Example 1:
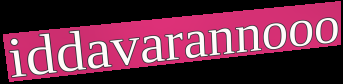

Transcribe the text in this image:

iddavarannooo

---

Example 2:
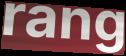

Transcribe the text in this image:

rang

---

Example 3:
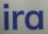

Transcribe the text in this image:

ira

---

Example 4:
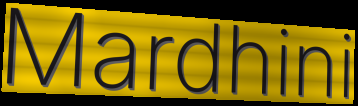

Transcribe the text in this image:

Mardhini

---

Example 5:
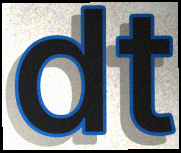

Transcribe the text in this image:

dt